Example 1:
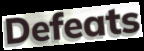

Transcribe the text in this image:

Defeats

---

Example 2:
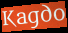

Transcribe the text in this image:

Kagdo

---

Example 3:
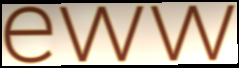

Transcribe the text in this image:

eww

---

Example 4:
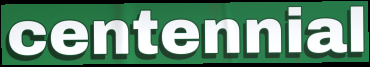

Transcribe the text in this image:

centennial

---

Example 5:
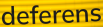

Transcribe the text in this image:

deferens